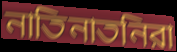
নাতিনাতনিরা